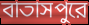
বাতাসপুরে